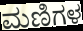
ಮಣಿಗಳ